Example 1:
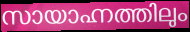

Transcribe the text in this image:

സായാഹ്നത്തിലും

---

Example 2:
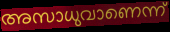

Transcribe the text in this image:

അസാധുവാണെന്ന്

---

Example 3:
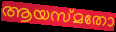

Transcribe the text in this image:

ആയസ്മതോ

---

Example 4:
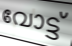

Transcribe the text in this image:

വോട്ട്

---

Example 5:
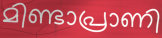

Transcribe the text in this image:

മിണ്ടാപ്രാണി